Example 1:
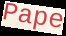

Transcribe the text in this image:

Pape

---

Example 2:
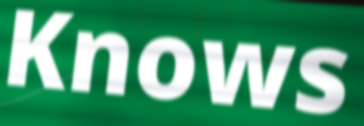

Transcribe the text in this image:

Knows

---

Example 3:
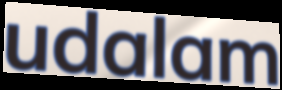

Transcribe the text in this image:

udalam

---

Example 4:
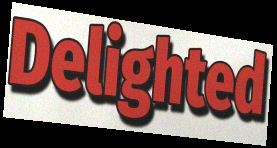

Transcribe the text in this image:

Delighted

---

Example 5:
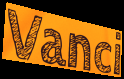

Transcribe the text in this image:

Vanci